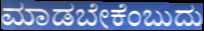
ಮಾಡಬೇಕೆಂಬುದು